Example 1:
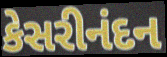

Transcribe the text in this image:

કેસરીનંદન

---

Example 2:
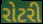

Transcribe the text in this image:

રોટરી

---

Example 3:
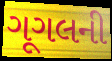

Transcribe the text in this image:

ગૂગલની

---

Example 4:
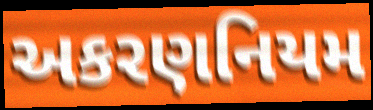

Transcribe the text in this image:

અકરણનિયમ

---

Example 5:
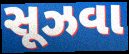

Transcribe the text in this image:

સૂઝવા